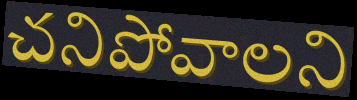
చనిపోవాలని